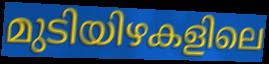
മുടിയിഴകളിലെ